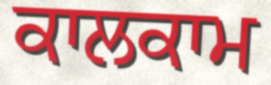
ਕਾਲਕਾਮ